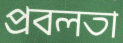
প্রবলতা